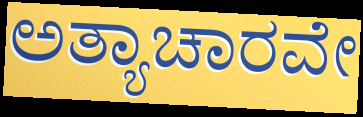
ಅತ್ಯಾಚಾರವೇ